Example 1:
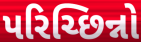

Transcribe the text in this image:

પરિચ્છિન્નો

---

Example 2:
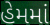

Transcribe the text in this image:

હેમમાં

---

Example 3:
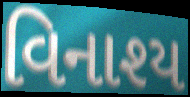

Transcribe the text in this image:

વિનાશ્ય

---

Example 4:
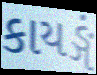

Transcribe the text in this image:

કાયઙ્ગં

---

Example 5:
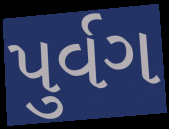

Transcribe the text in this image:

પુર્વગ